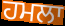
ਹਮਲਾ